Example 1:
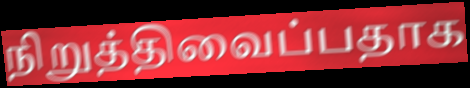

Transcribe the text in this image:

நிறுத்திவைப்பதாக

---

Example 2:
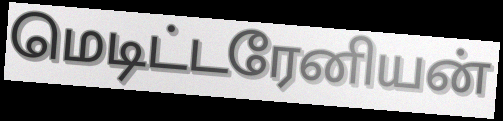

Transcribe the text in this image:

மெடிட்டரேனியன்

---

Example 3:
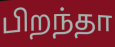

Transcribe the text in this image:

பிறந்தா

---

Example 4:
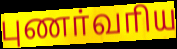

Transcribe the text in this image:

புணர்வரிய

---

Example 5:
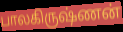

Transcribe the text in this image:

பாலகிருஷ்ணன்